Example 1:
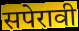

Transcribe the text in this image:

सपेरावी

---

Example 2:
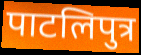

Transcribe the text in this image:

पाटलिपुत्र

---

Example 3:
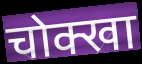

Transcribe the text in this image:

चोक्खा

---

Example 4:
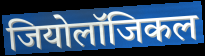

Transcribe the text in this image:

जियोलॉजिकल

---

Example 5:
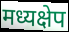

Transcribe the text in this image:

मध्यक्षेप